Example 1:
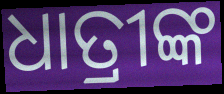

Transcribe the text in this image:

ଧାତ୍ରୀଙ୍କ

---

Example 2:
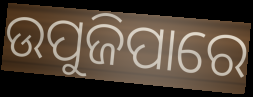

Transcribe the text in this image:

ଉପୁଜିପାରେ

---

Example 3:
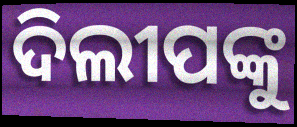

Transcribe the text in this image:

ଦିଲୀପଙ୍କୁ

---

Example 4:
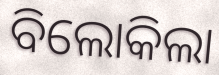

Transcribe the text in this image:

ବିଲୋକିଲା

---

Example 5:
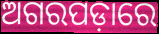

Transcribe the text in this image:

ଅଗରପଡ଼ାରେ